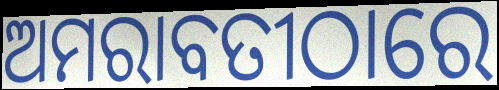
ଅମରାବତୀଠାରେ